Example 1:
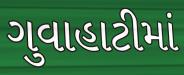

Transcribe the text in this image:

ગુવાહાટીમાં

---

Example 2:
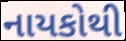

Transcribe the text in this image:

નાયકોથી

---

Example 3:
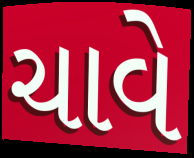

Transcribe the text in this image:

ચાવે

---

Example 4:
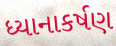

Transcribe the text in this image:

ધ્યાનાકર્ષણ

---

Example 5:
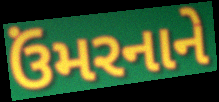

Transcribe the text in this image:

ઉંમરનાને